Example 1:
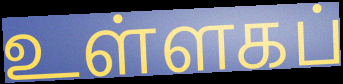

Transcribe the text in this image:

உள்ளகப்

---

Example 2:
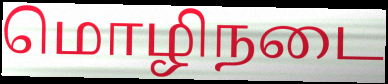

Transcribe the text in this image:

மொழிநடை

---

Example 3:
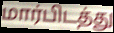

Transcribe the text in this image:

மார்பிடத்து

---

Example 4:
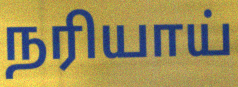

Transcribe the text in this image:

நரியாய்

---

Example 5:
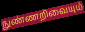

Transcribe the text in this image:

நுண்ணறிவையும்